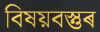
বিষয়বস্তুৰ